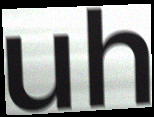
uh